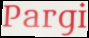
Pargi